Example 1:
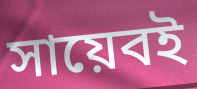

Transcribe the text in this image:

সায়েবই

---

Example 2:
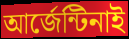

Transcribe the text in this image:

আর্জেন্টিনাই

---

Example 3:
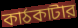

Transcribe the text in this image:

কাঠকাটার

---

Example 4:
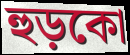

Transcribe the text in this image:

হুড়কো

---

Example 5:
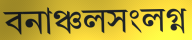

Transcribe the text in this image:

বনাঞ্চলসংলগ্ন